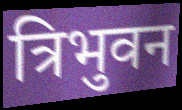
त्रिभुवन